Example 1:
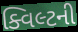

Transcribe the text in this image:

ક્વિલ્ટની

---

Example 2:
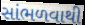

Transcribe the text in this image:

સાંભળવાથી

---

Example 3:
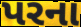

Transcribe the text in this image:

પરના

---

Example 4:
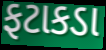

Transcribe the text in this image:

ફટાકડા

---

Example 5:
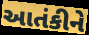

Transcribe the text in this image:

આતંકીને